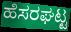
ಹೆಸರಘಟ್ಟ